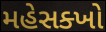
મહેસક્ખો